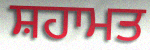
ਸ਼ਹਾਮਤ